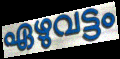
ഏഴുവട്ടം